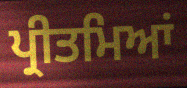
ਪ੍ਰੀਤਮਿਆਂ